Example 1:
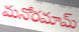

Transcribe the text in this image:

మనోరమామ్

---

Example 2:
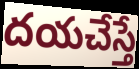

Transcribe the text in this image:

దయచేస్తే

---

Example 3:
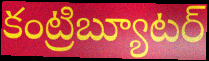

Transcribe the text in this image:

కంట్రిబ్యూటర్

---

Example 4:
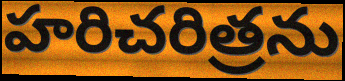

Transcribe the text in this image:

హరిచరిత్రను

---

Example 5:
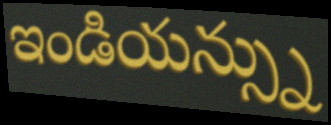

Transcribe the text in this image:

ఇండియన్స్ను